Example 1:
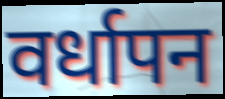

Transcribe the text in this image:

वर्धापन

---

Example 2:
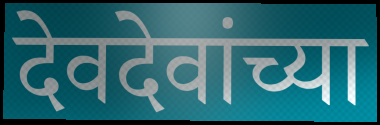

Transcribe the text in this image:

देवदेवांच्या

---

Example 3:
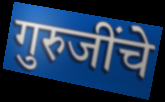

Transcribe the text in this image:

गुरुजींचे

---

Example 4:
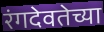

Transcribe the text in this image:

रंगदेवतेच्या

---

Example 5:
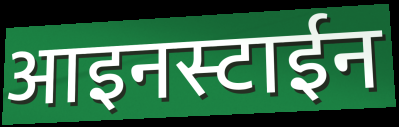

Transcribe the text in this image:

आइनस्टाईन